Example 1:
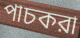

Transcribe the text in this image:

পাচকরা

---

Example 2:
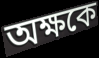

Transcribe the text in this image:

অক্ষকে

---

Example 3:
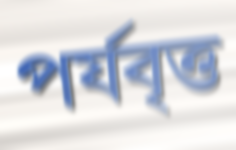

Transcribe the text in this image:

পর্যবৃত্ত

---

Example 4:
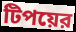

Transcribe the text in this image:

টিপয়ের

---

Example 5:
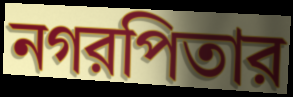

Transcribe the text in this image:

নগরপিতার